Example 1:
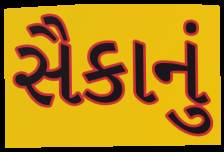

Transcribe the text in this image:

સૈકાનું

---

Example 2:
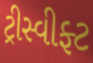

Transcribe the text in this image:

ટ્રીસ્વીફ્ટ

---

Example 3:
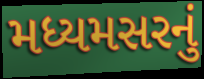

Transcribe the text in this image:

મધ્યમસરનું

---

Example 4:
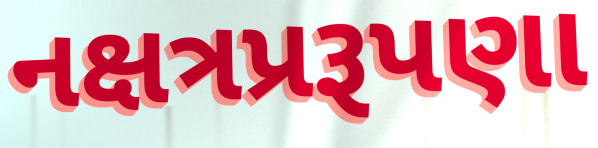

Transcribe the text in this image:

નક્ષત્રપ્રરૂપણા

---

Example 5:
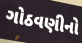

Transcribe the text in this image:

ગોઠવણીનો